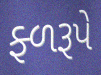
ફ્ળરૂપે